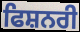
ਫਿਸ਼ਨਰੀ